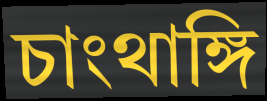
চাংথাঙ্গি